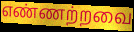
எண்ணற்றவை